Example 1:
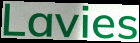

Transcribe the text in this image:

Lavies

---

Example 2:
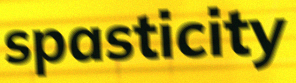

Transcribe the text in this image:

spasticity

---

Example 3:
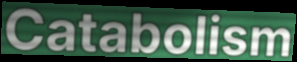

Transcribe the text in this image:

Catabolism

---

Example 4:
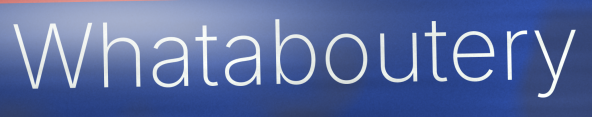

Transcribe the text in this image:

Whataboutery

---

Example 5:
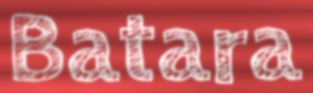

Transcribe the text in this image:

Batara